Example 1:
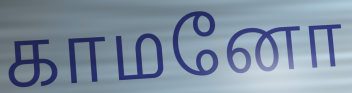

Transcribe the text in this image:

காமனோ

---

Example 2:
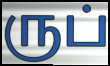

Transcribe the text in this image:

ருப்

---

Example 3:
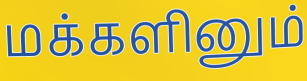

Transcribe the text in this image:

மக்களினும்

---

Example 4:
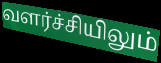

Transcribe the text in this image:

வளர்ச்சியிலும்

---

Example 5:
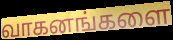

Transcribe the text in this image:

வாகனங்களை